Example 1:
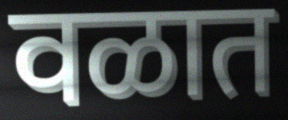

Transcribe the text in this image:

वळात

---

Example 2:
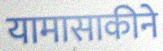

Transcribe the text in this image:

यामासाकीने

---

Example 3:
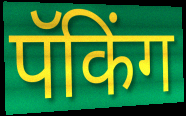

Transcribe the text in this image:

पॅकिंग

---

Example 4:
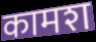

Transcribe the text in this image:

कामश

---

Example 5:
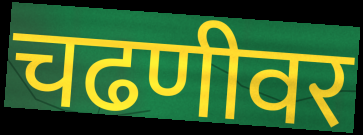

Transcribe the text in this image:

चढणीवर